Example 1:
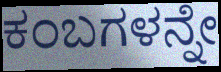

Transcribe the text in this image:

ಕಂಬಗಳನ್ನೇ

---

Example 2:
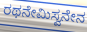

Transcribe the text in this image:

ರಥನೇಮಿಸ್ವನೇನ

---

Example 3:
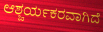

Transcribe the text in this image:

ಆಶ್ಚರ್ಯಕರವಾಗಿದೆ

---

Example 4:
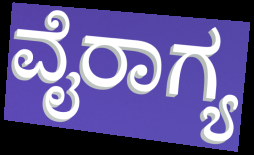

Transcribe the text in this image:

ವೈರಾಗ್ಯ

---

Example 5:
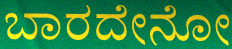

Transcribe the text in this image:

ಬಾರದೇನೋ